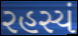
રહસ્યં